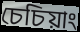
চেচিয়াং